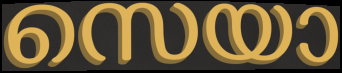
സെയാ